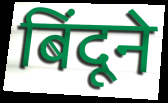
बिंदूने